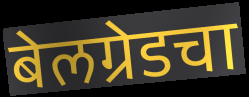
बेलग्रेडचा